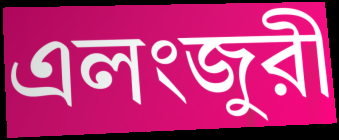
এলংজুরী